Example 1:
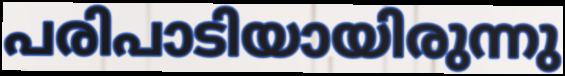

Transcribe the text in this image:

പരിപാടിയായിരുന്നു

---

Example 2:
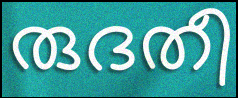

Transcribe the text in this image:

രുദതീ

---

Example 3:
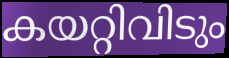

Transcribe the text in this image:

കയറ്റിവിടും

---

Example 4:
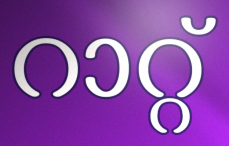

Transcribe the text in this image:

റാറ്റ്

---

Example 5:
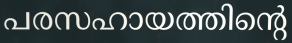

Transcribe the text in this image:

പരസഹായത്തിന്റെ